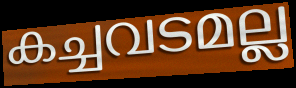
കച്ചവടമല്ല